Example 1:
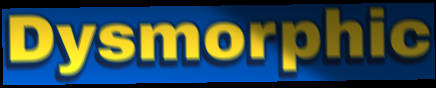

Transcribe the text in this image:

Dysmorphic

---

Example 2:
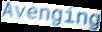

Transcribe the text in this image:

Avenging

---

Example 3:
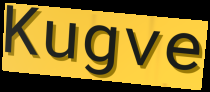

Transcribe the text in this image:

Kugve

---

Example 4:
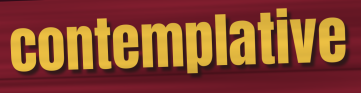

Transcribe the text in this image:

contemplative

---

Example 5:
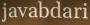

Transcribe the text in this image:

javabdari